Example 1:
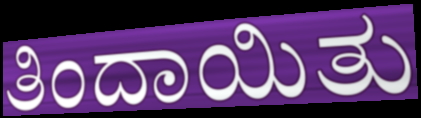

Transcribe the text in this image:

ತಿಂದಾಯಿತು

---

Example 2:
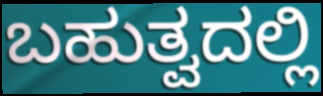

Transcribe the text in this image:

ಬಹುತ್ವದಲ್ಲಿ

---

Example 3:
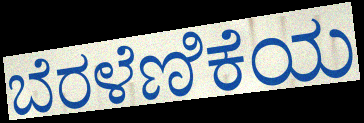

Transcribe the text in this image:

ಬೆರಳೆಣಿಕೆಯ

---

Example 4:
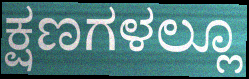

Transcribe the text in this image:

ಕ್ಷಣಗಳಲ್ಲೂ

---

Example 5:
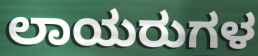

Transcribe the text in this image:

ಲಾಯರುಗಳ